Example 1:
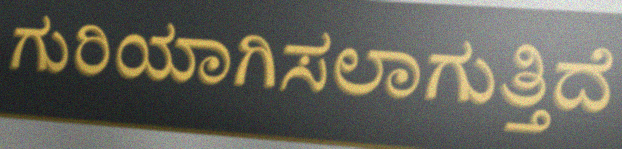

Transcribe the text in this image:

ಗುರಿಯಾಗಿಸಲಾಗುತ್ತಿದೆ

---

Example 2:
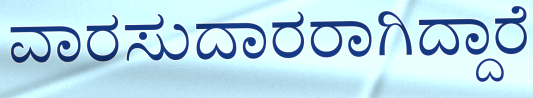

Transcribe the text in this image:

ವಾರಸುದಾರರಾಗಿದ್ದಾರೆ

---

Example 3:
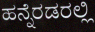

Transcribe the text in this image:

ಹನ್ನೆರಡರಲ್ಲಿ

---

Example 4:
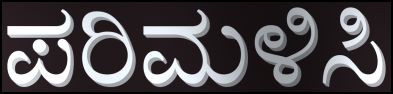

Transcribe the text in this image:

ಪರಿಮಳಿಸಿ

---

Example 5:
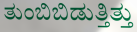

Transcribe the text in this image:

ತುಂಬಿಬಿಡುತ್ತಿತ್ತು